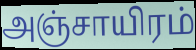
அஞ்சாயிரம்